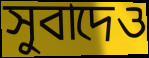
সুবাদেও